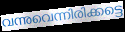
വന്നുവെന്നിരിക്കട്ടെ